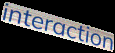
interaction